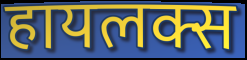
हायलक्स